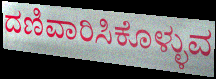
ದಣಿವಾರಿಸಿಕೊಳ್ಳುವ